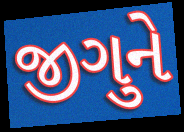
જીગુને